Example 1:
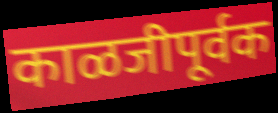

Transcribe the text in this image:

काळजीपूर्वक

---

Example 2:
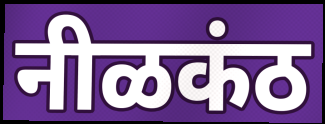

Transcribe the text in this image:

नीळकंठ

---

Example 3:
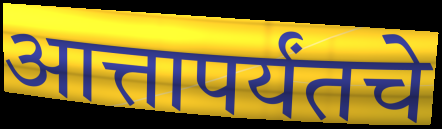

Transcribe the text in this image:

आत्तापर्यंतचे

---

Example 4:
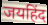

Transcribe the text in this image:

जयहिंद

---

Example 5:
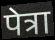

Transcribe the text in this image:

पेत्रा